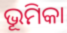
ଭୂମିକା